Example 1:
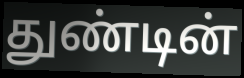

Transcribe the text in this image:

துண்டின்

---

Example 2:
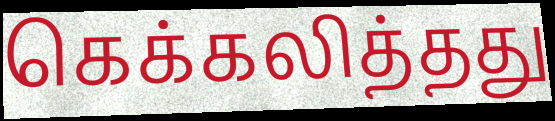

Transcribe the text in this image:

கெக்கலித்தது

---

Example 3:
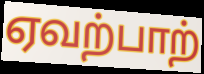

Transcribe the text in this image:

ஏவற்பாற்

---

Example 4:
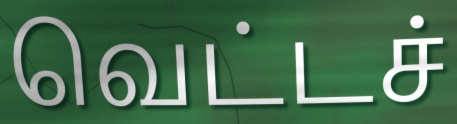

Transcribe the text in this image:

வெட்டச்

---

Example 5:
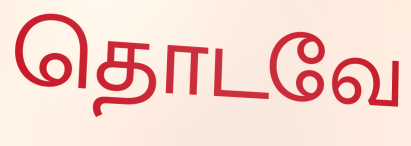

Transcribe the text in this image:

தொடவே